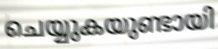
ചെയ്യുകയുണ്ടായി